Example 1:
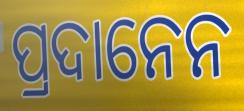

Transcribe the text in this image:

ପ୍ରଦାନେନ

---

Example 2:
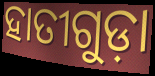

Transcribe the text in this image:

ହାତୀଗୁଡ଼ା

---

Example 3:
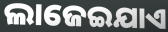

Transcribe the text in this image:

ଲାଜେଇଯାଏ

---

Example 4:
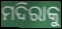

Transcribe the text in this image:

ମଦିରାକୁ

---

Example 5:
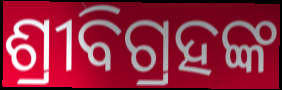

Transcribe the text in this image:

ଶ୍ରୀବିଗ୍ରହଙ୍କ